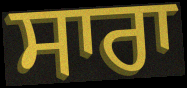
ਸਾਰਾ